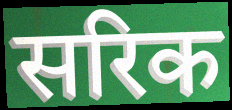
सरिक